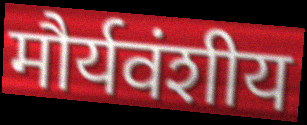
मौर्यवंशीय